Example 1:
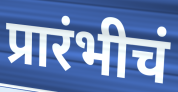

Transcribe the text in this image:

प्रारंभीचं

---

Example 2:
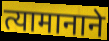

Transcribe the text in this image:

त्यामानाने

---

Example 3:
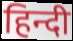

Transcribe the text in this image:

हिन्दी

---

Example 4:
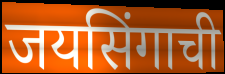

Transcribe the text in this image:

जयसिंगाची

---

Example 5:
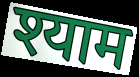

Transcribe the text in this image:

श्‍याम